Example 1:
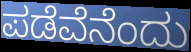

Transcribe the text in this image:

ಪಡೆವೆನೆಂದು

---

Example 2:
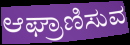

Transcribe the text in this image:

ಆಘ್ರಾಣಿಸುವ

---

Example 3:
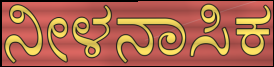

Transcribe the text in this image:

ನೀಳನಾಸಿಕ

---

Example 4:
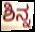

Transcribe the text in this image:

ಶಿನ್ನ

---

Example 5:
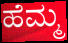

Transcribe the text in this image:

ಹೆಮ್ಮ